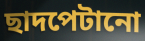
ছাদপেটানো